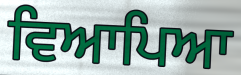
ਵਿਆਪਿਆ